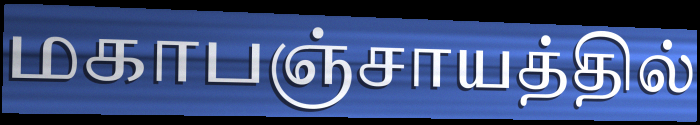
மகாபஞ்சாயத்தில்